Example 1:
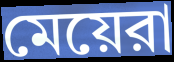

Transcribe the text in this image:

মেয়েরা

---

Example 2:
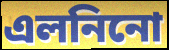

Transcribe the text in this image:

এলনিনো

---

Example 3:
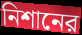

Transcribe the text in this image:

নিশানের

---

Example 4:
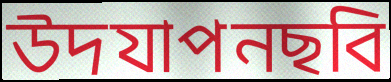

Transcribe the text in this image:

উদযাপনছবি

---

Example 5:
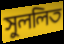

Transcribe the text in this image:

সুললিত